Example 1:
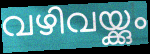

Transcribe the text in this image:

വഴിവയ്ക്കും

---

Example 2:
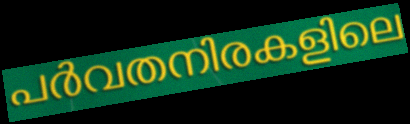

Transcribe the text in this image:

പർവതനിരകളിലെ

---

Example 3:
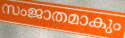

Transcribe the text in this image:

സംജാതമാകും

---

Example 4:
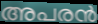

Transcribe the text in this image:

അപരൻ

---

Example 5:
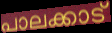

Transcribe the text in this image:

പാലക്കാട്